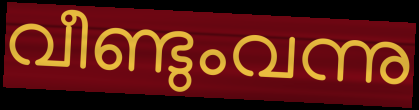
വീണ്ടുംവന്നു